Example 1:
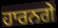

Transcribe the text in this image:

ਹਾਰਨਗੇ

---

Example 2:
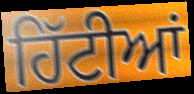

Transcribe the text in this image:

ਹਿੱਟੀਆਂ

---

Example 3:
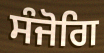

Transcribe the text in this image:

ਸੰਜੋਗਿ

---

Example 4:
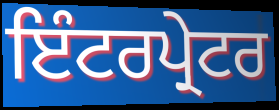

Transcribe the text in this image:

ਇੰਟਰਪ੍ਰੇਟਰ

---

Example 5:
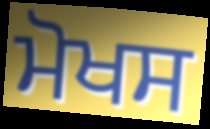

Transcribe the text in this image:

ਮੋਖਸ